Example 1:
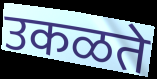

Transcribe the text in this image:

उकळते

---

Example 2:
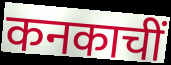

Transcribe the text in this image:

कनकाचीं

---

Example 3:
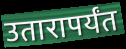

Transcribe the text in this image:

उतारापर्यंत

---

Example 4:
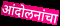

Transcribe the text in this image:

आंदोलनांचा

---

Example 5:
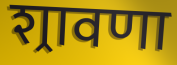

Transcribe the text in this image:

श्रावणा